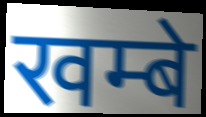
खम्बे